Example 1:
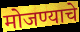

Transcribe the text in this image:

मोजण्याचे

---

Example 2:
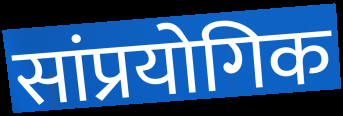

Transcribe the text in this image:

सांप्रयोगिक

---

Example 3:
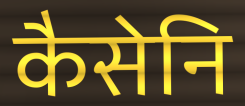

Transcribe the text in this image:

कैसेनि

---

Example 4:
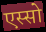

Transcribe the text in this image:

एस्सो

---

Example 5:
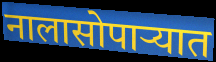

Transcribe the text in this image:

नालासोपाऱ्यात